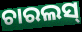
ଚାରଲସ୍